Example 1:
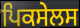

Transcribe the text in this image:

ਪਿਕਸੇਲਸ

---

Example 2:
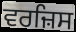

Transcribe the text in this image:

ਵਰਜ਼ਿਸ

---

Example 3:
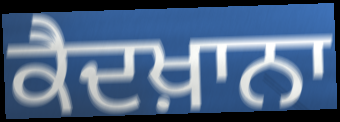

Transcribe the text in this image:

ਕੈਦਖ਼ਾਨਾ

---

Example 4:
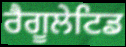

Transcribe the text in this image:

ਰੈਗੂਲੇਟਿਡ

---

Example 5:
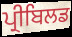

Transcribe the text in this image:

ਪ੍ਰੀਬਿਲਡ